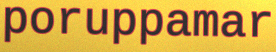
poruppamar